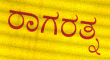
ರಾಗರತ್ನ